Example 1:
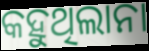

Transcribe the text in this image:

କହୁଥିଲାନା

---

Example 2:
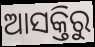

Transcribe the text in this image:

ଆସକ୍ତିରୁ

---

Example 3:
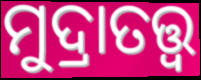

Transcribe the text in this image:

ମୁଦ୍ରାତତ୍ତ୍ବ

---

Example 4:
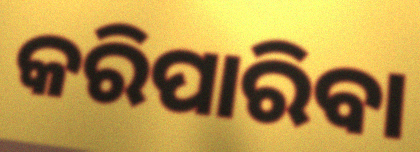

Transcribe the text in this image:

କରିପାରିବା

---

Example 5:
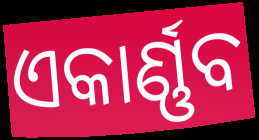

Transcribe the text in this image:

ଏକାର୍ଣ୍ଣବ